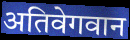
अतिवेगवान